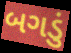
બગડું